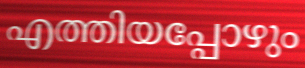
എത്തിയപ്പോഴും